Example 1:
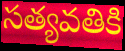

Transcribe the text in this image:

సత్యవతికి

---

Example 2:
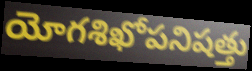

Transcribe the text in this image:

యోగశిఖోపనిషత్తు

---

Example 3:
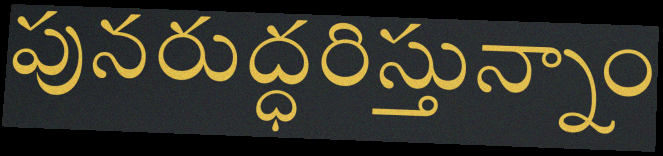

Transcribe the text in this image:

పునరుద్ధరిస్తున్నాం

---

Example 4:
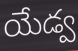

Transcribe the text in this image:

యేడ్వ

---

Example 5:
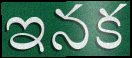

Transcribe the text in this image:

ఇనక